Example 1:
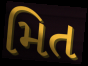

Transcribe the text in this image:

મિત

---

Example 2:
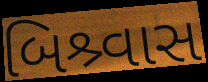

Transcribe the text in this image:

બિશ્ર્વાસ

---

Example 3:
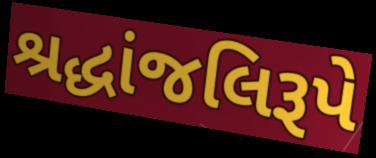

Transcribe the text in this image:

શ્રદ્ધાંજલિરૂપે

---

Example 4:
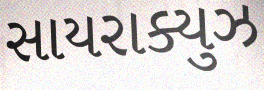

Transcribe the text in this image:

સાયરાક્યુઝ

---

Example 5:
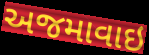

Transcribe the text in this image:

અજમાવાઇ